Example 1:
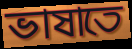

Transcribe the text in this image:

ভাষাতে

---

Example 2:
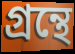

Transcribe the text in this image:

গ্রন্থে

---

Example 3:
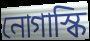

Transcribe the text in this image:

নোগাস্কি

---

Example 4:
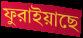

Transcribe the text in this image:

ফুরাইয়াছে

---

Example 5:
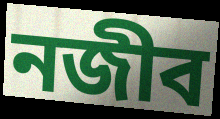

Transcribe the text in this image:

নজীব